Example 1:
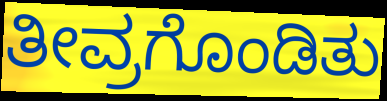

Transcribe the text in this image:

ತೀವ್ರಗೊಂಡಿತು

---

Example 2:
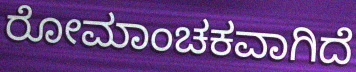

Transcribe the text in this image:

ರೋಮಾಂಚಕವಾಗಿದೆ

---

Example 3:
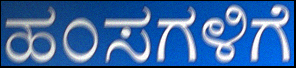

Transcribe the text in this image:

ಹಂಸಗಳಿಗೆ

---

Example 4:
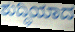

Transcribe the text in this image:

ಶುದ್ಧಿಯಾದ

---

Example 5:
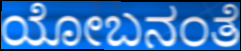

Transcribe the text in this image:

ಯೋಬನಂತೆ